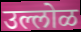
उल्लोळ